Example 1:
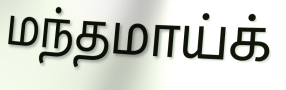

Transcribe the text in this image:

மந்தமாய்க்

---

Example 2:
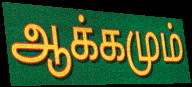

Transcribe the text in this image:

ஆக்கமும்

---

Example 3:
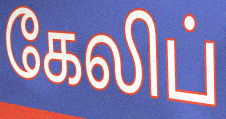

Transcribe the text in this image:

கேலிப்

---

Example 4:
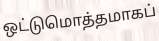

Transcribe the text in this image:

ஒட்டுமொத்தமாகப்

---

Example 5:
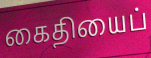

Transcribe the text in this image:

கைதியைப்